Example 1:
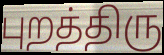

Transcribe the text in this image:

புறத்திரு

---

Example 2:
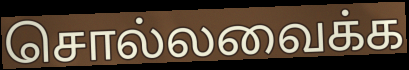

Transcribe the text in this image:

சொல்லவைக்க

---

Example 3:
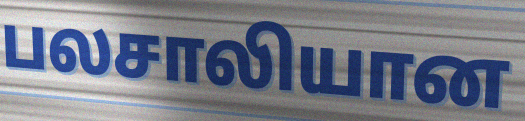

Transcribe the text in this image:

பலசாலியான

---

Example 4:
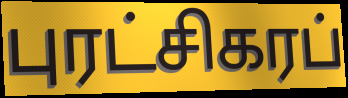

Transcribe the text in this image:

புரட்சிகரப்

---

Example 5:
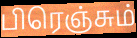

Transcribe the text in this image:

பிரெஞ்சும்